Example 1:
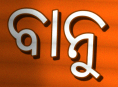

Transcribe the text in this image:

ବାନୁ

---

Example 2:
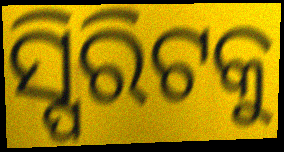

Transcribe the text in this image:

ସ୍ପିରିଟକୁ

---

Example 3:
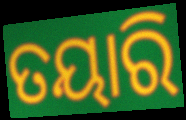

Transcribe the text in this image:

ତୟାରି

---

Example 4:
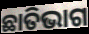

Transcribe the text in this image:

ଛାତିଭାଗ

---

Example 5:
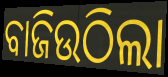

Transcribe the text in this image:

ବାଜିଉଠିଲା